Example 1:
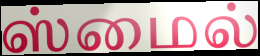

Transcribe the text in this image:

ஸ்மைல்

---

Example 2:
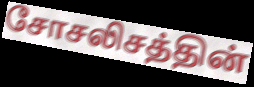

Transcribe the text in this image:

சோசலிசத்தின்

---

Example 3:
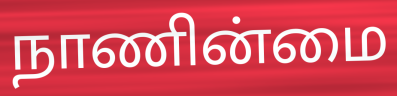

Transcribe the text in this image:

நாணின்மை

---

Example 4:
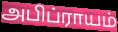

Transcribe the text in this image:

அபிப்ராயம்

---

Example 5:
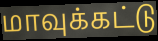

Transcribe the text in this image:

மாவுக்கட்டு